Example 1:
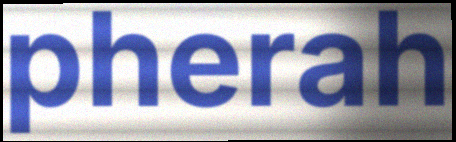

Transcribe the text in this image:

pherah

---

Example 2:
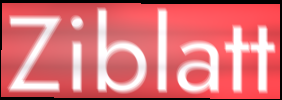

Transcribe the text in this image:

Ziblatt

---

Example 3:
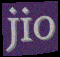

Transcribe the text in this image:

jio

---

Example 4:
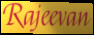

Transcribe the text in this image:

Rajeevan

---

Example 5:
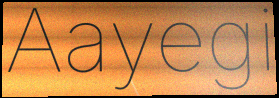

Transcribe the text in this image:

Aayegi